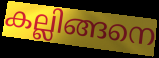
കല്ലിങ്ങനെ